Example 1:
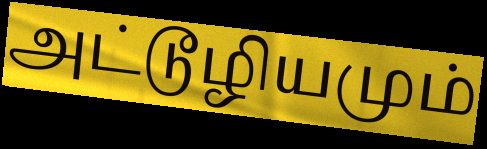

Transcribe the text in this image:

அட்டூழியமும்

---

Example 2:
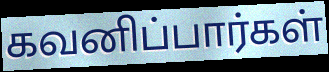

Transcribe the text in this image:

கவனிப்பார்கள்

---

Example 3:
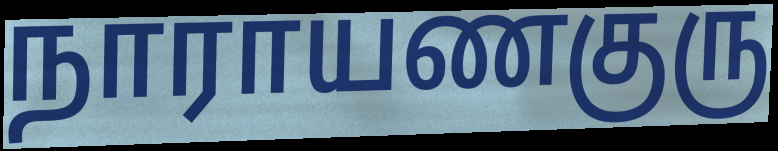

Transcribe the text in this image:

நாராயணகுரு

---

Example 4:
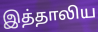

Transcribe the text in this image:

இத்தாலிய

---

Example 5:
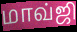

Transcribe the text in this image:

மாவ்ஜி